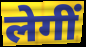
लेगीं